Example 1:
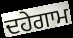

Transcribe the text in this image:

ਦਹੇਗਾਮ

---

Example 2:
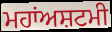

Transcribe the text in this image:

ਮਹਾਂਅਸ਼ਟਮੀ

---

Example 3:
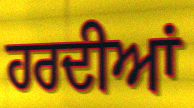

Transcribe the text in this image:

ਹਰਦੀਆਂ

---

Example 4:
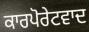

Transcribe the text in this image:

ਕਾਰਪੋਰੇਟਵਾਦ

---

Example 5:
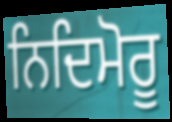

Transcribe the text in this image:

ਨਿਦਿਮੋਰੂ